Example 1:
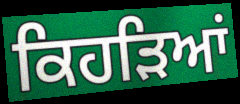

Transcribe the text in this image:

ਕਿਹੜਿਆਂ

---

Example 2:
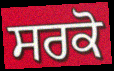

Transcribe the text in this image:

ਸਰਕੋ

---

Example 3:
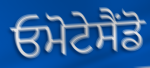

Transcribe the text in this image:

ਓਮੋਟੇਸੈਂਡੋ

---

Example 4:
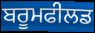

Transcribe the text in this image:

ਬਰੂਮਫੀਲਡ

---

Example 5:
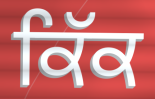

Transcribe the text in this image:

ਕਿੱਕ